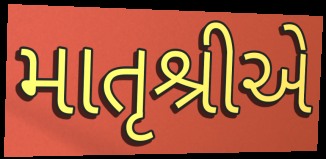
માતૃશ્રીએ